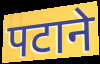
पटाने